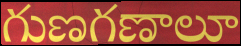
గుణగణాలూ